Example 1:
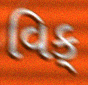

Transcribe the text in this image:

વિક્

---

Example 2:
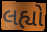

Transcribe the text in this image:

લહ્યો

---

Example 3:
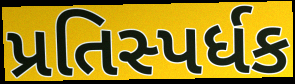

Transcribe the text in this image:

પ્રતિસ્પર્ધક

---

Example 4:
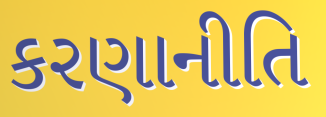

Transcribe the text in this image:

કરણાનીતિ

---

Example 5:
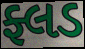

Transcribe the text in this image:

ફ્લડ